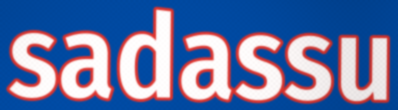
sadassu